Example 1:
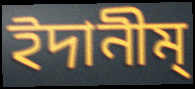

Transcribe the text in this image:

ইদানীম্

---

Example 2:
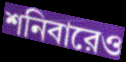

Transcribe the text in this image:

শনিবারেও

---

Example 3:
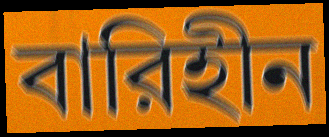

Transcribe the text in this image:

বারিহীন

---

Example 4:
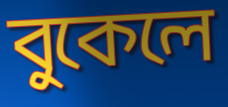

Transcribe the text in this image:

বুকেলে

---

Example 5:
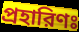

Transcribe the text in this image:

প্রহারিণঃ